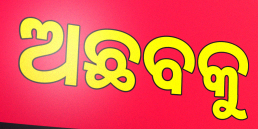
ଅଛବକୁ